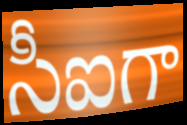
సీఐగా